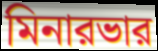
মিনারভার